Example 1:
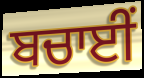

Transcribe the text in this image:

ਬਚਾਈਂ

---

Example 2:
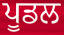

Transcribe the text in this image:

ਪੂਡਲ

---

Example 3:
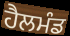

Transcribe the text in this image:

ਹੈਲਮੰਡ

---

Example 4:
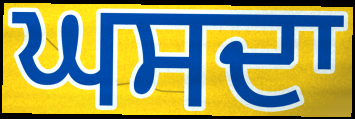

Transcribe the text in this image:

ਘਸਦਾ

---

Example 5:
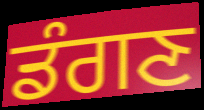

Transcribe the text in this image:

ਡੰਗਣ